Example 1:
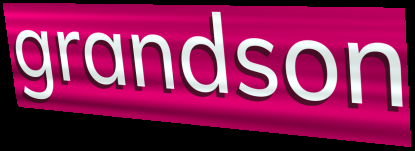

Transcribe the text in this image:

grandson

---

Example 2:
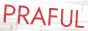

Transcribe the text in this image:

PRAFUL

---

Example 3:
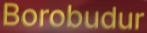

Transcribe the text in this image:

Borobudur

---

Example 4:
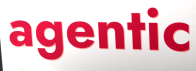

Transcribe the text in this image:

agentic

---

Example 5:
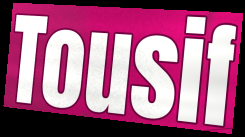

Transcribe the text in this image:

Tousif